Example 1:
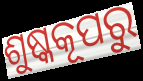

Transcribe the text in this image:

ଶୁଷ୍କକୂପରୁ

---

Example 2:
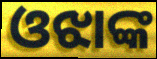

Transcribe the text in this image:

ଓଝାଙ୍କ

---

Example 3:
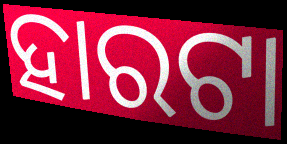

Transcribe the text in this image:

ହାରଟା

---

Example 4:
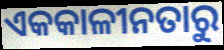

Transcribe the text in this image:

ଏକକାଳୀନତାରୁ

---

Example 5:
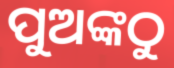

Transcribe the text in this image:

ପୁଅଙ୍କଠୁ